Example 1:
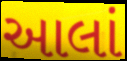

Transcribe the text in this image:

આલાં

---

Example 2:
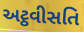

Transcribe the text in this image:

અટ્ઠવીસતિ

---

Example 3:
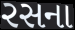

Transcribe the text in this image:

રસના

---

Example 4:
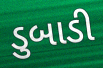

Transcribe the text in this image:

ડુબાડી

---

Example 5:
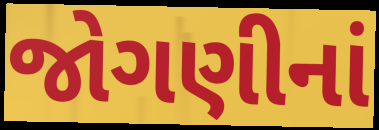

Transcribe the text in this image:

જોગણીનાં